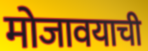
मोजावयाची